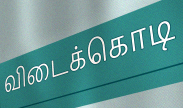
விடைக்கொடி